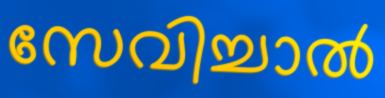
സേവിച്ചാൽ